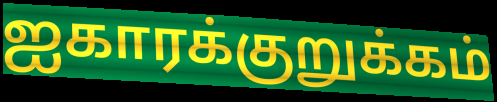
ஐகாரக்குறுக்கம்